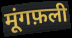
मूंगफ़ली